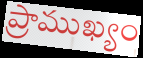
ప్రాముఖ్యం